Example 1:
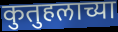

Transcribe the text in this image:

कुतुहलाच्या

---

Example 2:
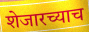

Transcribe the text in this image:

शेजारच्याच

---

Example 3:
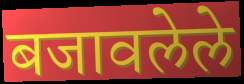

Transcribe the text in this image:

बजावलेले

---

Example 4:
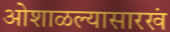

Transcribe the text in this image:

ओशाळल्यासारखं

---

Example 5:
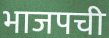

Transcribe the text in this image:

भाजपची